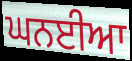
ਘਨਈਆ